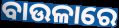
ବାଉଳାରେ